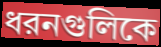
ধরনগুলিকে